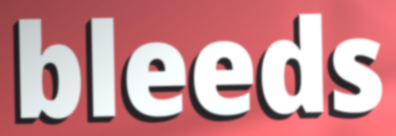
bleeds